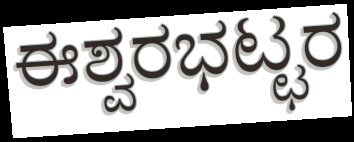
ಈಶ್ವರಭಟ್ಟರ